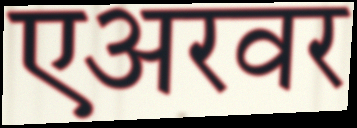
एअरवर